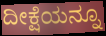
ದೀಕ್ಷೆಯನ್ನೂ